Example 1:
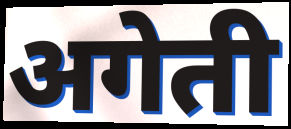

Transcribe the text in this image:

अगेती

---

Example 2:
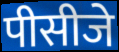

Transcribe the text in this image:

पीसीजे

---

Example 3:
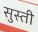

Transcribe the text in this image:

सुस्ती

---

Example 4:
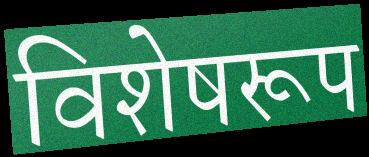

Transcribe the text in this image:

विशेषरूप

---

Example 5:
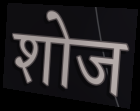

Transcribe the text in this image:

शोज